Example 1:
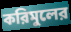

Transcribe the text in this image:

করিমুলের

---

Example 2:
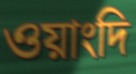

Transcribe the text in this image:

ওয়াংদি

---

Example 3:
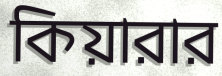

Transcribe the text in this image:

কিয়ারার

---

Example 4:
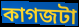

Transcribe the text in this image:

কাগজটা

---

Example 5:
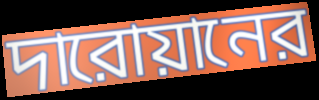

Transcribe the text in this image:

দারোয়ানের